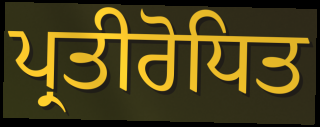
ਪ੍ਰਤੀਰੋਧਿਤ